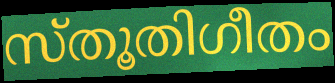
സ്തൂതിഗീതം